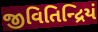
જીવિતિન્દ્રિયં